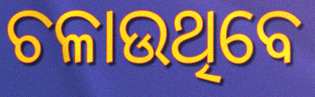
ଚଳାଉଥିବେ